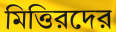
মিত্তিরদের